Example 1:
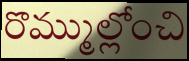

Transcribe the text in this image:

రొమ్ముల్లోంచి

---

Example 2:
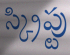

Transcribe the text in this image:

స్క్రిప్టు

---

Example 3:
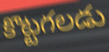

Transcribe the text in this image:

కొట్టగలడు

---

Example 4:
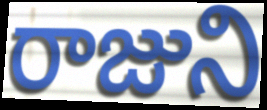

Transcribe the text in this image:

రాజుని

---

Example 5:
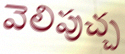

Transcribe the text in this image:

వెలిపుచ్చ